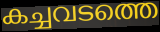
കച്ചവടത്തെ